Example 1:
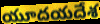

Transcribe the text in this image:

యూదయదేశ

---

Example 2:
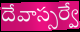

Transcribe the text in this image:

దేవాస్సర్వే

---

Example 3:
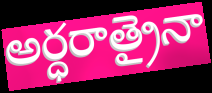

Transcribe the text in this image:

అర్ధరాత్రైనా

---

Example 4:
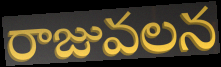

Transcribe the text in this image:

రాజువలన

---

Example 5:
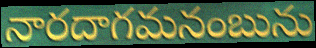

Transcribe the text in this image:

నారదాగమనంబును